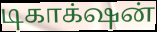
டிகாக்‌ஷன்